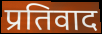
प्रतिवाद